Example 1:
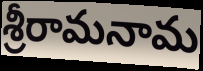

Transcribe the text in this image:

శ్రీరామనామ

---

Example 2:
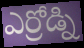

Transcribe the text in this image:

ఎర్రోడ్ని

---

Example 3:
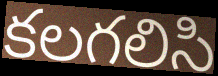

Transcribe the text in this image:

కలగలిసి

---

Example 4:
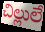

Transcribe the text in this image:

చిల్లులే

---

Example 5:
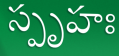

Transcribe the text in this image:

స్పృహః